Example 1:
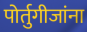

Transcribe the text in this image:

पोर्तुगीजांना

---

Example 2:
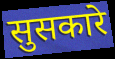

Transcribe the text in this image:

सुसकारे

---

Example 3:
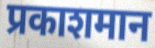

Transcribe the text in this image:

प्रकाशमान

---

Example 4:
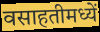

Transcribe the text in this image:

वसाहतीमध्यें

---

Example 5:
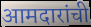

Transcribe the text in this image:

आमदारांची